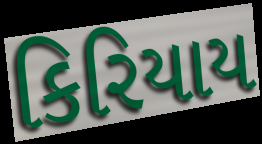
કિરિયાય